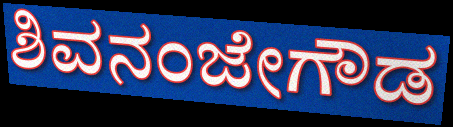
ಶಿವನಂಜೇಗೌಡ